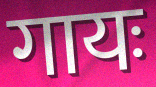
गायः